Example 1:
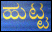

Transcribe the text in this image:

ಹುಟ್ಟ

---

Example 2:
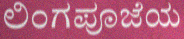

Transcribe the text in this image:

ಲಿಂಗಪೂಜೆಯ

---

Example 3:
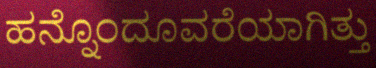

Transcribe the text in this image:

ಹನ್ನೊಂದೂವರೆಯಾಗಿತ್ತು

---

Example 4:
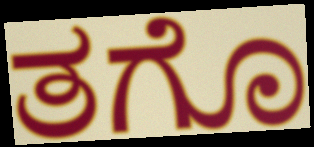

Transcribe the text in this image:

ತಗೊ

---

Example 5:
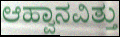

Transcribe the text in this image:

ಆಹ್ವಾನವಿತ್ತು